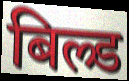
बिल्ड